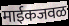
माईकजवळ